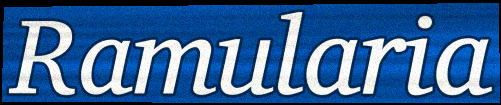
Ramularia